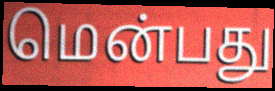
மென்பது